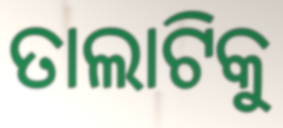
ତାଲାଟିକୁ